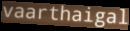
vaarthaigal